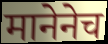
मानेनेच